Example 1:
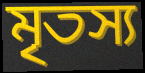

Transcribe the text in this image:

মৃতস্য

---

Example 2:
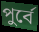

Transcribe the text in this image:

পুর্বে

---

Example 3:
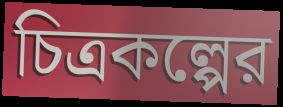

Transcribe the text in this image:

চিত্রকল্পের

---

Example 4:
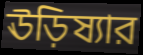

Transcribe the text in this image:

ঊড়িষ্যার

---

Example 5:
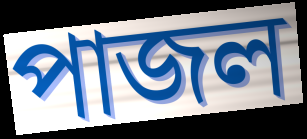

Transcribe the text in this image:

পাজল